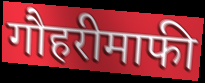
गौहरीमाफी